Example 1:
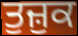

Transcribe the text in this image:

ਤੁਜ਼ੁਕ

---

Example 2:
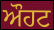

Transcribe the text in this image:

ਔਹਟ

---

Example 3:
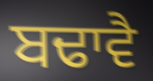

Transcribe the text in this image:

ਬਢਾਵੈ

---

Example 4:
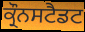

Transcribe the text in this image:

ਕ੍ਰੌਨਸਟੈਡਟ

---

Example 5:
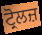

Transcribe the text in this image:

ਟ੍ਰੋਲਜ਼